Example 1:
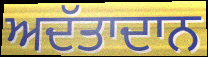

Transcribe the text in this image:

ਅਦੱਤਾਦਾਨ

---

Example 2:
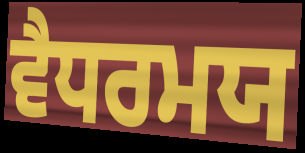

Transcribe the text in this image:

ਵੈਧਰਮਯ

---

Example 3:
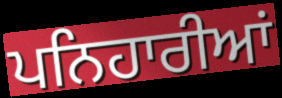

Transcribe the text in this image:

ਪਨਿਹਾਰੀਆਂ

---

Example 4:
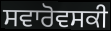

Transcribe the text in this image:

ਸਵਾਰੋਵਸਕੀ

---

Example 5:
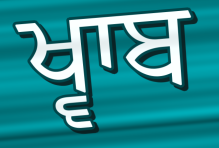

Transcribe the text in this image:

ਖ੍ਵਾਬ